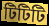
টিটিটি